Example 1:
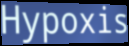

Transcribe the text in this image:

Hypoxis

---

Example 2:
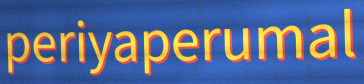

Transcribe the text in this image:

periyaperumal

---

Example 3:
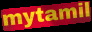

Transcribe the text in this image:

mytamil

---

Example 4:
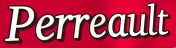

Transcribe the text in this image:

Perreault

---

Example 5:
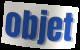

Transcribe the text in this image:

objet